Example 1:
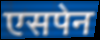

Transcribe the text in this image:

एसपेन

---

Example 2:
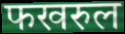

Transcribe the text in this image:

फखरुल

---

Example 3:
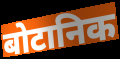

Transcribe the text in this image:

बोटानिक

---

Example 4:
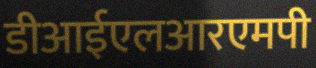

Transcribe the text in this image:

डीआईएलआरएमपी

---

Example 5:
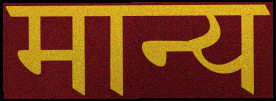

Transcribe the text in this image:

मान्य